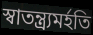
স্বাতন্ত্র্যমর্হতি